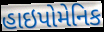
હાઇપોમેનિક